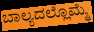
ಬಾಲ್ಯದಲ್ಲೊಮ್ಮೆ